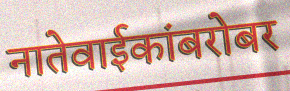
नातेवाईकांबरोबर